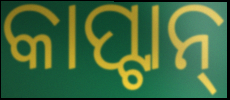
କାପ୍ଟାନ୍